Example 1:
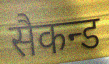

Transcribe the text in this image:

सैकन्ड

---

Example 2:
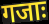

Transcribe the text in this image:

गजाः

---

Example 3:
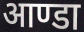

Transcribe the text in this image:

आण्डा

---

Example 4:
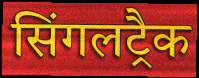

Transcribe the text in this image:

सिंगलट्रैक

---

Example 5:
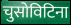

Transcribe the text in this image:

चुसोविटिना